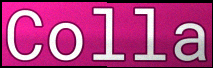
Colla